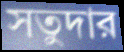
সতুদার